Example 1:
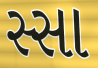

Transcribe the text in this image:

સ્સા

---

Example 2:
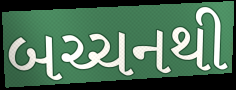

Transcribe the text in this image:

બચ્ચનથી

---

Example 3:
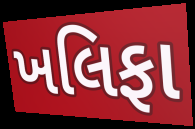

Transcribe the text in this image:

ખલિફા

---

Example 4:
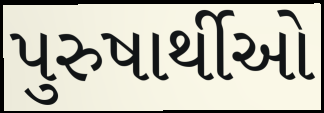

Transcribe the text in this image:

પુરુષાર્થીઓ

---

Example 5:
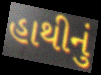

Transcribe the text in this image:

હાથીનું